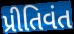
પ્રીતિવંત